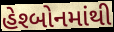
હેશ્બોનમાંથી